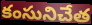
కంసునిచేత